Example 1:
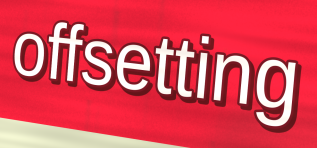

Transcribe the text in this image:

offsetting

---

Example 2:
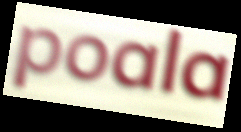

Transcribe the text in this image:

poala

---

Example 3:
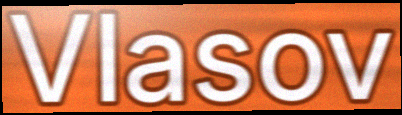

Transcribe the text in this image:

Vlasov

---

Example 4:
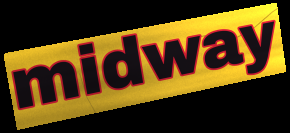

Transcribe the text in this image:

midway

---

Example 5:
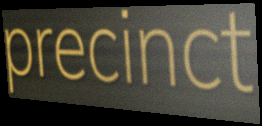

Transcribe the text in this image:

precinct